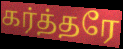
கர்த்தரே